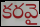
కరవై